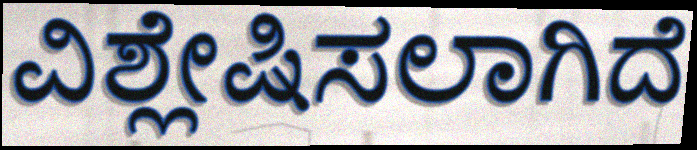
ವಿಶ್ಲೇಷಿಸಲಾಗಿದೆ